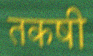
तकषी